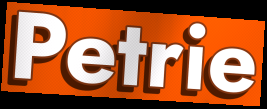
Petrie